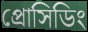
প্রোসিডিং